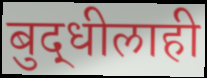
बुद्धीलाही